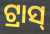
ଟ୍ରାସ୍